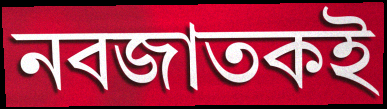
নবজাতকই